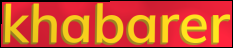
khabarer